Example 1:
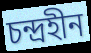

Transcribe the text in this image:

চন্দ্রহীন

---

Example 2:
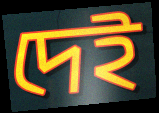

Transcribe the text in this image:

দেই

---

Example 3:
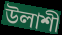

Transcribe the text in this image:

উলাশী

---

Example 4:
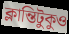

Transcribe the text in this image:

ক্লান্তিটুকুও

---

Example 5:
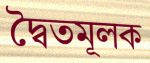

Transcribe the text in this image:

দ্বৈতমূলক